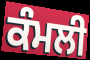
ਕੰਮਲੀ